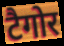
टैगोर